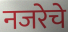
नजरेचे